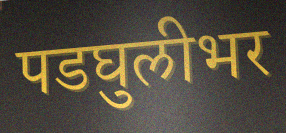
पडघुलीभर